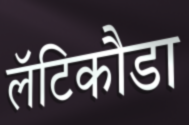
लॅटिकौडा